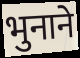
भुनाने